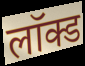
लॉक्ड